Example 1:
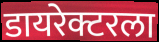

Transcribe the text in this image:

डायरेक्टरला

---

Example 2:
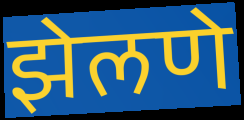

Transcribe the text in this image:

झेलणे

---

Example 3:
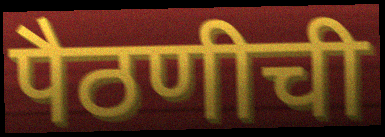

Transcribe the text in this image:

पैठणीची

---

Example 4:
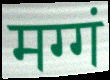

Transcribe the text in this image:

मग्गं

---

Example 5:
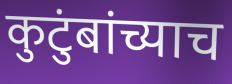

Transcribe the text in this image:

कुटुंबांच्याच